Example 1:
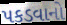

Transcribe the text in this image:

પકડવાનો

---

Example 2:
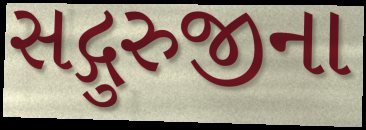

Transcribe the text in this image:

સદ્ગુરુજીના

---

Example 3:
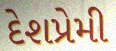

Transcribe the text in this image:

દેશપ્રેમી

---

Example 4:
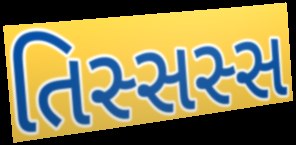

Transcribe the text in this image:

તિસ્સસ્સ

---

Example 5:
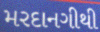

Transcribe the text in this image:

મરદાનગીથી